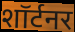
शॉर्टनर